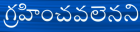
గ్రహించవలెనని